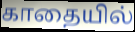
காதையில்